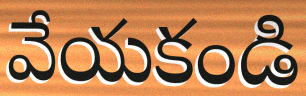
వేయకండి